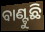
ବାଣ୍ଟୁଛି